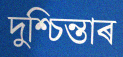
দুশ্চিন্তাৰ